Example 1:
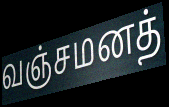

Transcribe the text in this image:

வஞ்சமனத்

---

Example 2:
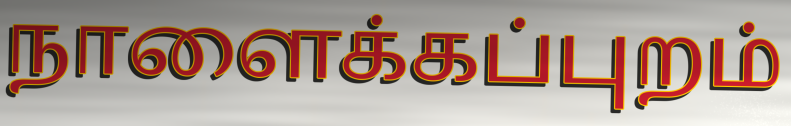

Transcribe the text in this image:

நாளைக்கப்புறம்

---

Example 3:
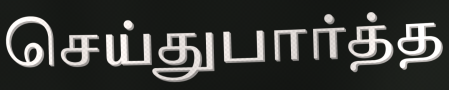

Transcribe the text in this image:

செய்துபார்த்த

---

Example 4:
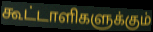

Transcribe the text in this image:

கூட்டாளிகளுக்கும்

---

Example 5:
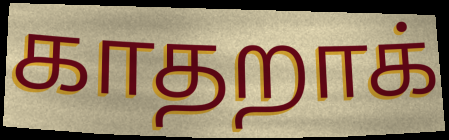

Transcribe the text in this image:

காதறாக்